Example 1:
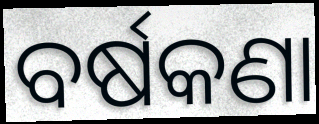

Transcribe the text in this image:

ବର୍ଷକଣା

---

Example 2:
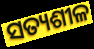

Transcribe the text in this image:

ସତ୍ୟଶୀଳ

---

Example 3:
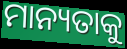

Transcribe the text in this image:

ମାନ୍ୟତାକୁ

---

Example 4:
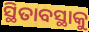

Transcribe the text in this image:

ସ୍ଥିତାବସ୍ଥାକୁ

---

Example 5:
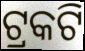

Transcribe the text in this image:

ଟ୍ରକଟି